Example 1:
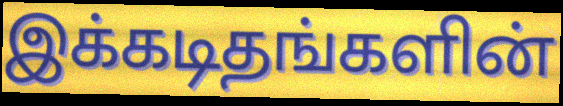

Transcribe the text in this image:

இக்கடிதங்களின்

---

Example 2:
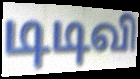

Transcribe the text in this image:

டிடிவி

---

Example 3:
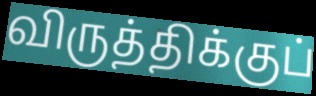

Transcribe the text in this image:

விருத்திக்குப்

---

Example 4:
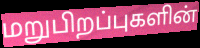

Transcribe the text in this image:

மறுபிறப்புகளின்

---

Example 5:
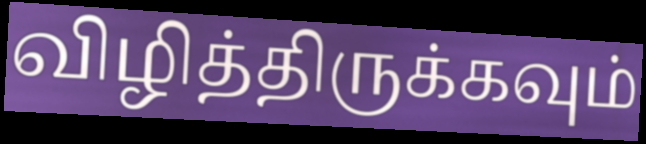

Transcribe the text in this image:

விழித்திருக்கவும்